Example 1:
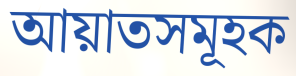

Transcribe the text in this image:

আয়াতসমূহক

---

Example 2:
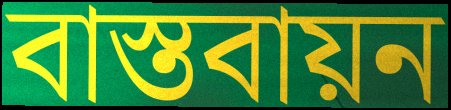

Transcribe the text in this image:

বাস্তবায়ন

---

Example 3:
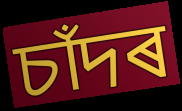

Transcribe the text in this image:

চাঁদৰ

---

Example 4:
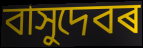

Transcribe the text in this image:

বাসুদেবৰ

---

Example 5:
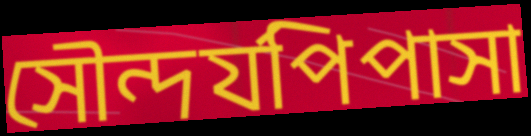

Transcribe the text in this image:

সৌন্দৰ্যপিপাসা